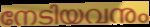
നേടിയവനും